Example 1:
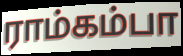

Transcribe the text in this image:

ராம்கம்பா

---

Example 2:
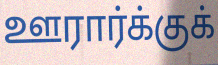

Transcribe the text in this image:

ஊரார்க்குக்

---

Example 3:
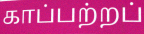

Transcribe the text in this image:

காப்பற்றப்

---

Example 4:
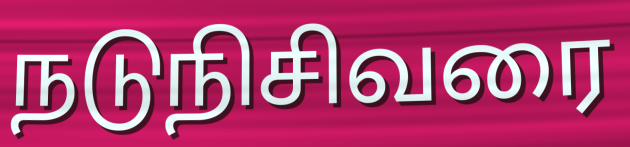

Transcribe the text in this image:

நடுநிசிவரை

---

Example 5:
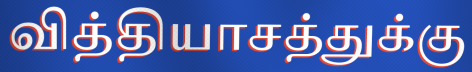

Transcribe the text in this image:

வித்தியாசத்துக்கு